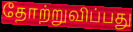
தோற்றுவிப்பது